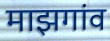
माझगांव